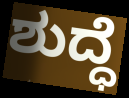
ಶುದ್ಧೆ